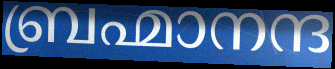
ബ്രഹ്മാനന്ദ